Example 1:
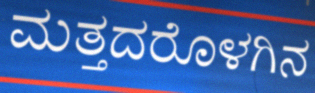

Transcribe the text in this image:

ಮತ್ತದರೊಳಗಿನ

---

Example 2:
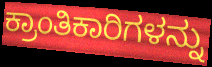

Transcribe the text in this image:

ಕ್ರಾಂತಿಕಾರಿಗಳನ್ನು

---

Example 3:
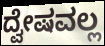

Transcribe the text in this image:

ದ್ವೇಷವಲ್ಲ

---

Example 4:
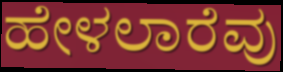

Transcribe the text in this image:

ಹೇಳಲಾರೆವು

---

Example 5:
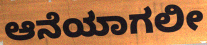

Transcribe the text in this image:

ಆನೆಯಾಗಲೀ